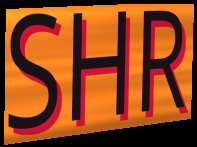
SHR